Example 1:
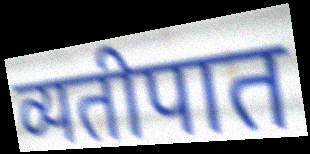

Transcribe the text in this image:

व्यतीपात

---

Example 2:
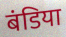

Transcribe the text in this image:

बंडिया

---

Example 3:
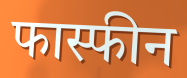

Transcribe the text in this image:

फास्फीन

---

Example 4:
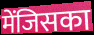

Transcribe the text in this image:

मेंजिसका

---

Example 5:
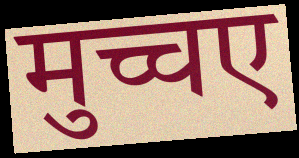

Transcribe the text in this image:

मुच्चए